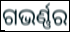
ଗଭର୍ଣ୍ଣର